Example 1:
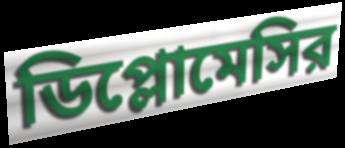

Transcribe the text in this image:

ডিপ্লোমেসির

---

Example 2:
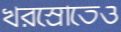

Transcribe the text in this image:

খরস্রোতেও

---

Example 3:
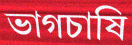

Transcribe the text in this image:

ভাগচাষি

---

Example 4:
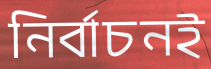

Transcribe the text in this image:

নির্বাচনই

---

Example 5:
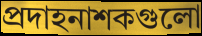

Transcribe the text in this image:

প্রদাহনাশকগুলো